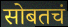
सोबतचं